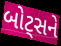
બોટ્સને